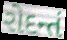
રોદન્તં